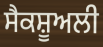
ਸੈਕਸ਼ੂਅਲੀ